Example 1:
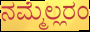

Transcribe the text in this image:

ನಮ್ಮೆಲ್ಲರಂ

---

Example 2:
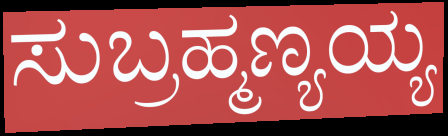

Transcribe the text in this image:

ಸುಬ್ರಹ್ಮಣ್ಯಯ್ಯ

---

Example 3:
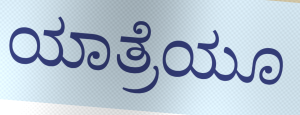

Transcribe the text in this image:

ಯಾತ್ರೆಯೂ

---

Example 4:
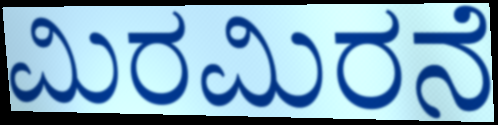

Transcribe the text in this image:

ಮಿರಮಿರನೆ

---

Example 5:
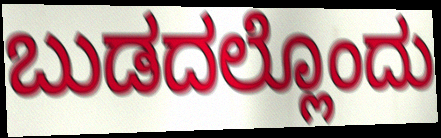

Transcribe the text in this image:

ಬುಡದಲ್ಲೊಂದು